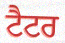
ਟੈਟਰ